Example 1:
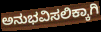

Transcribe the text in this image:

ಅನುಭವಿಸಲಿಕ್ಕಾಗಿ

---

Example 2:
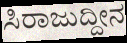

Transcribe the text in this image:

ಸಿರಾಜುದ್ದೀನ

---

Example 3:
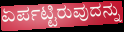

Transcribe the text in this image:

ಏರ್ಪಟ್ಟಿರುವುದನ್ನು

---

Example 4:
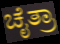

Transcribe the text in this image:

ಚೈತ್ರಾ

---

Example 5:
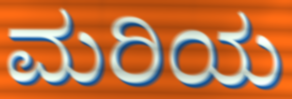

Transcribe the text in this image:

ಮರಿಯ